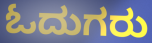
ಓದುಗರು